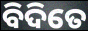
ବିଦିତେ